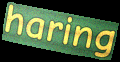
haring